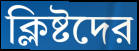
ক্লিষ্টদের